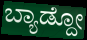
ಬ್ಯಾಡ್ದೋ